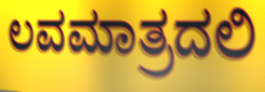
ಲವಮಾತ್ರದಲಿ